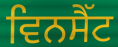
ਵਿਨਸੈੱਟ